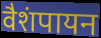
वैशंपायन